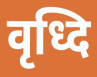
वृध्दि